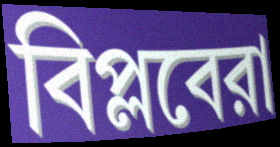
বিপ্লবেরা